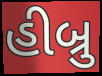
હીબ્રુ